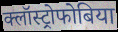
क्लॉस्ट्रोफोबिया